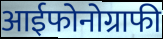
आईफोनोग्राफी